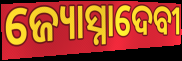
ଜ୍ୟୋସ୍ନାଦେବୀ